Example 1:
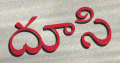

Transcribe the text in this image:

దూసి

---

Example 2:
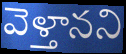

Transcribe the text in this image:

వెళ్తానని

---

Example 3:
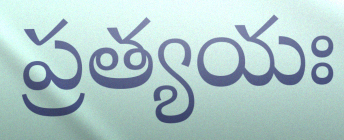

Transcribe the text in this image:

ప్రత్యయః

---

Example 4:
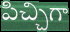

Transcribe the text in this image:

పిచ్చిగా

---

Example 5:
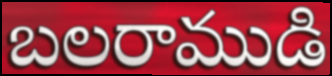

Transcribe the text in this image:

బలరాముడి